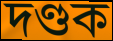
দণ্ডক